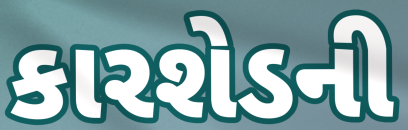
કારશેડની